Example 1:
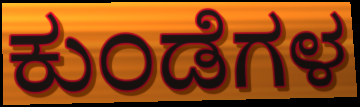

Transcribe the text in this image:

ಕುಂಡೆಗಳ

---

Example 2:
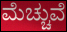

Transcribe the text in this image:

ಮೆಚ್ಚುವೆ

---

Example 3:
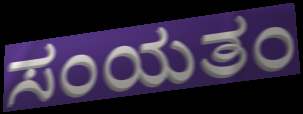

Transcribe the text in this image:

ಸಂಯತಂ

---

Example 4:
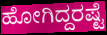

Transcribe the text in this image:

ಹೋಗಿದ್ದರಷ್ಟೆ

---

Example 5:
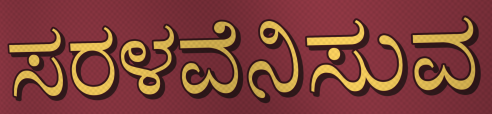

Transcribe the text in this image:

ಸರಳವೆನಿಸುವ